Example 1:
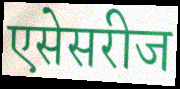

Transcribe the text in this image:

एसेसरीज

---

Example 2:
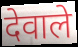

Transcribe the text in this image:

देवाले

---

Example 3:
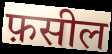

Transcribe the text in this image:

फ़सील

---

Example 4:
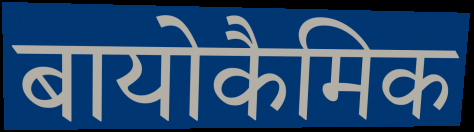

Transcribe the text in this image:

बायोकैमिक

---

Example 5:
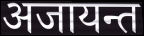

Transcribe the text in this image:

अजायन्त